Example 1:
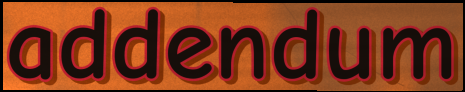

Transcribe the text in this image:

addendum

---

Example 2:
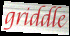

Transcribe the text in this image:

griddle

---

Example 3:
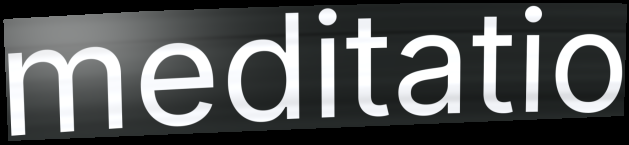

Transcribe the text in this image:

meditatio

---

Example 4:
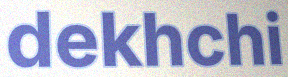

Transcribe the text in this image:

dekhchi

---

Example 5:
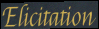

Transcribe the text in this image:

Elicitation